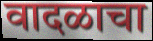
वादळाचा